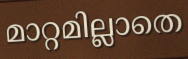
മാറ്റമില്ലാതെ